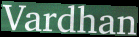
Vardhan